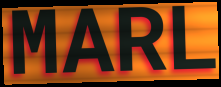
MARL